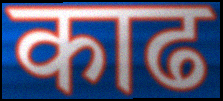
काढ